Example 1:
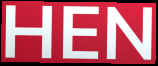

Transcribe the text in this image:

HEN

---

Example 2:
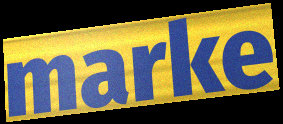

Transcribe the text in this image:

marke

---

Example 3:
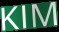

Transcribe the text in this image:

KIM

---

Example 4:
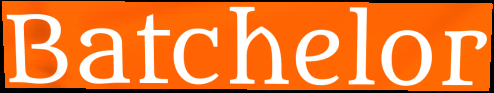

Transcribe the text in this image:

Batchelor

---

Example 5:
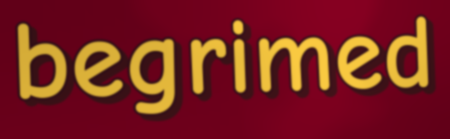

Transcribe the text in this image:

begrimed